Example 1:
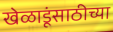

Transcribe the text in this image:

खेळाडूंसाठीच्या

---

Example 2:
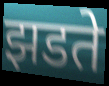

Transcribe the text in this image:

झडते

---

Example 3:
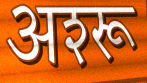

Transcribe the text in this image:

अश्रू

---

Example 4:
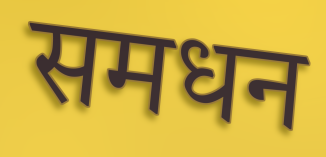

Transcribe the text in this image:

समधन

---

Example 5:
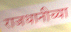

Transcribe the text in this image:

राजधानीच्या